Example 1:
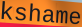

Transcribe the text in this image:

kshame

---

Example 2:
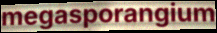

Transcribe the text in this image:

megasporangium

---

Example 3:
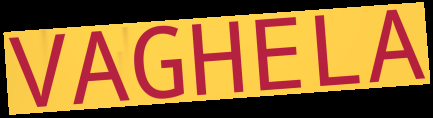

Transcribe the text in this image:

VAGHELA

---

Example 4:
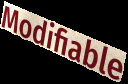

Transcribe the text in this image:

Modifiable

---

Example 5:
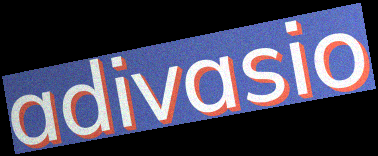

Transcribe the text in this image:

adivasio